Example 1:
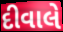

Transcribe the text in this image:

દીવાલે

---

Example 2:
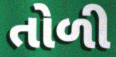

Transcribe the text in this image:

તોળી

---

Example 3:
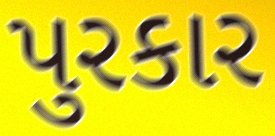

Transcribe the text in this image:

પુરકાર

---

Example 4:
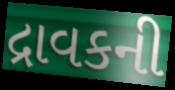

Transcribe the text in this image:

દ્રાવકની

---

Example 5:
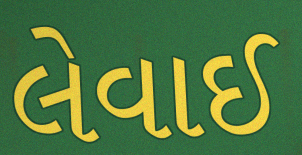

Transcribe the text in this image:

લેવાઈ